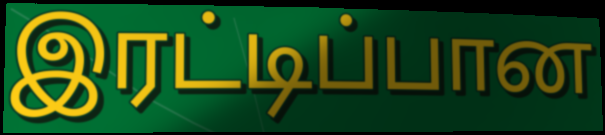
இரட்டிப்பான